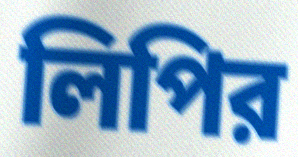
লিপির